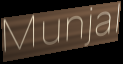
Munjal